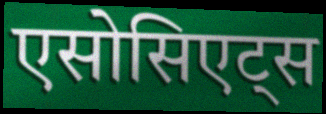
एसोसिएट्स